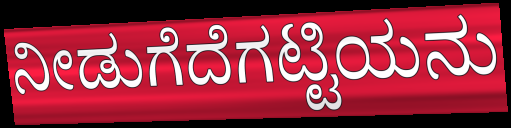
ನೀಡುಗೆದೆಗಟ್ಟಿಯನು